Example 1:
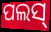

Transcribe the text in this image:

ପଲସ୍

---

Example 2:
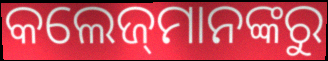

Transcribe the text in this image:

କଲେଜ୍‌ମାନଙ୍କରୁ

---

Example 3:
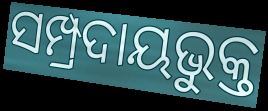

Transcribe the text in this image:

ସମ୍ପ୍ରଦାୟଭୁକ୍ତ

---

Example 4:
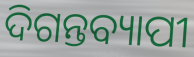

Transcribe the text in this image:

ଦିଗନ୍ତବ୍ୟାପୀ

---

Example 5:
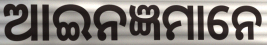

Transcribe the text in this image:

ଆଇନଜ୍ଞମାନେ